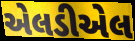
એલડીએલ